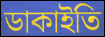
ডাকাইতি